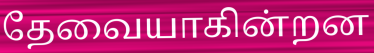
தேவையாகின்றன